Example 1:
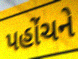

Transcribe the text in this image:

પહોંચને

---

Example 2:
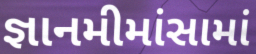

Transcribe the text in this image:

જ્ઞાનમીમાંસામાં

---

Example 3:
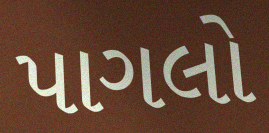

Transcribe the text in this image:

પાગલો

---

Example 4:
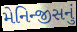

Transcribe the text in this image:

મેનિન્જીસનું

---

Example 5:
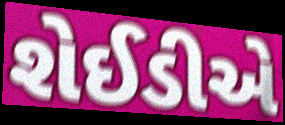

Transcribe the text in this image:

શેઈડીએ